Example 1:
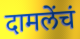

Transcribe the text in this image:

दामलेंचं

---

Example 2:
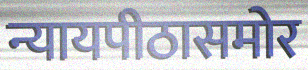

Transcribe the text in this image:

न्यायपीठासमोर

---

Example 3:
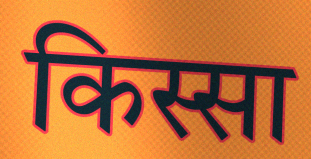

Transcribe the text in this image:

किस्सा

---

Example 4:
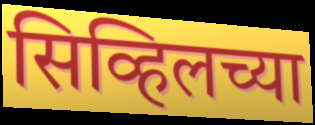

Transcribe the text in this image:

सिव्हिलच्या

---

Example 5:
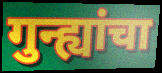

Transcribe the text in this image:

गुन्ह्यांचा